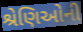
શ્રેણિઓની